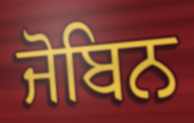
ਜੋਬਿਨ